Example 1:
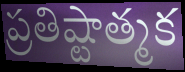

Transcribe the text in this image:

ప్రతిష్టాత్మక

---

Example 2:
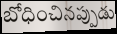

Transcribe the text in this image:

బోధించినప్పుడు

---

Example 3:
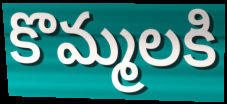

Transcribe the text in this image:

కొమ్మలకి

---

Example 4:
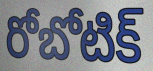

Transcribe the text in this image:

రోబోటిక్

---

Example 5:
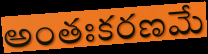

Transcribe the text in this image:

అంతఃకరణమే